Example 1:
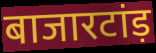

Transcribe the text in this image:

बाजारटांड़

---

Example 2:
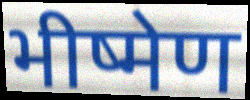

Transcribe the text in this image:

भीष्मेण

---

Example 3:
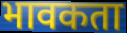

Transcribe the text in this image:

भावकता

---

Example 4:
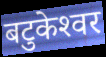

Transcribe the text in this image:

बटुकेश्‍वर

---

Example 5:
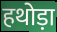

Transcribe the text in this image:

हथोड़ा